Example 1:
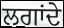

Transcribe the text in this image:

ਲਗਾਂਦੇ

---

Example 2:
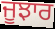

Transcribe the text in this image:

ਜੂਝਾਰ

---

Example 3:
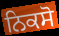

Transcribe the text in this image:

ਨਿਕਸੋ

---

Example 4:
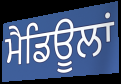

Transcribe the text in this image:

ਮੈਡਿਊਲਾਂ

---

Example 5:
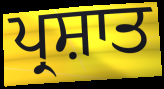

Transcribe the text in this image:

ਪ੍ਰਸ਼ਾਤ